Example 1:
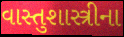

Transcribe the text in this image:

વાસ્તુશાસ્ત્રીના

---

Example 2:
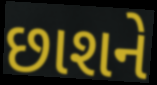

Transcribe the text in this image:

છાશને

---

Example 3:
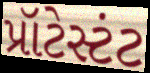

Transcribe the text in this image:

પ્રૉટેસ્ટંટ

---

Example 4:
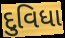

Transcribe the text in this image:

દુવિધા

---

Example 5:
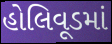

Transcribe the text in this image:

હોલિવૂડમાં